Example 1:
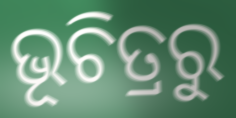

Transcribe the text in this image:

ଭୂଚିତ୍ରରୁ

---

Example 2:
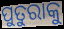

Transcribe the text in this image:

ପୁତୁରାକୁ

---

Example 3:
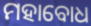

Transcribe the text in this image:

ମହାବୋଧ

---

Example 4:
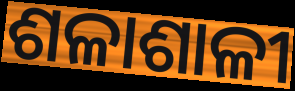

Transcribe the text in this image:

ଶଳାଶାଳୀ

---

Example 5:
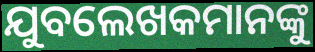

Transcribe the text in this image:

ଯୁବଲେଖକମାନଙ୍କୁ